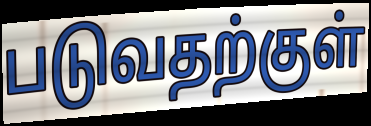
படுவதற்குள்